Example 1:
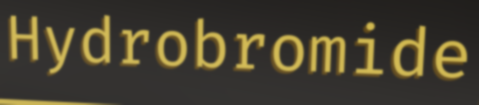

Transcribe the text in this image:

Hydrobromide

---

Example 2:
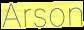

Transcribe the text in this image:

Arson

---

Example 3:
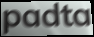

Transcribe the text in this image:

padta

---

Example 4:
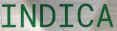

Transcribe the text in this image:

INDICA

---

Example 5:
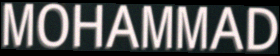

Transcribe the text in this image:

MOHAMMAD